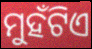
ମୁହଁଟିଏ